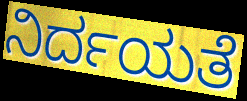
ನಿರ್ದಯತೆ